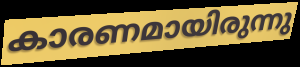
കാരണമായിരുന്നു